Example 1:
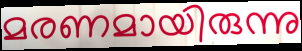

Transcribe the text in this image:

മരണമായിരുന്നു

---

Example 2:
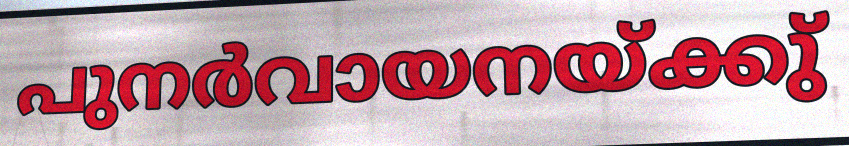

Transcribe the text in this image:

പുനർവായനയ്ക്കു്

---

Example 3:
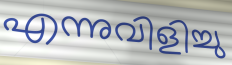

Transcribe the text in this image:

എന്നുവിളിച്ചു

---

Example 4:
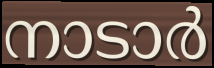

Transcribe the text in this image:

നാടാർ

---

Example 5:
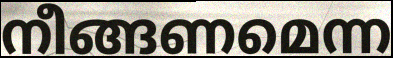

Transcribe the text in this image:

നീങ്ങണമെന്ന